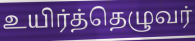
உயிர்த்தெழுவர்